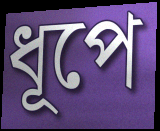
ধূপে